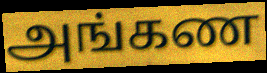
அங்கண